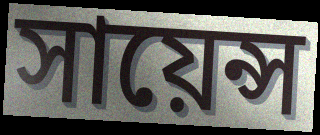
সায়েন্স